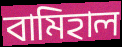
বামিহাল